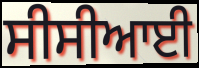
ਸੀਸੀਆਈ